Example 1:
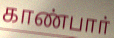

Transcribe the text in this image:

காண்பார்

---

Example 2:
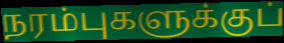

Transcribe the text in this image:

நரம்புகளுக்குப்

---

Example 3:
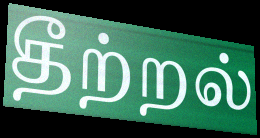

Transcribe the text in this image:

தீற்றல்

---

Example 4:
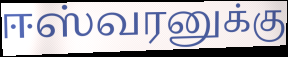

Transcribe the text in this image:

ஈஸ்வரனுக்கு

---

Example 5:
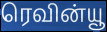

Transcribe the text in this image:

ரெவின்யூ